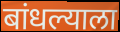
बांधल्याला